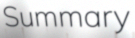
Summary